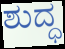
ಶುದ್ಧ